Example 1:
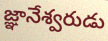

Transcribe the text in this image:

జ్ఞానేశ్వరుడు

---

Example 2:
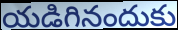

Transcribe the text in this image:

యడిగినందుకు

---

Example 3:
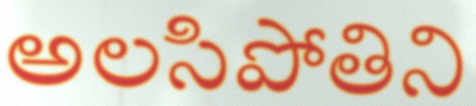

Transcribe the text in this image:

అలసిపోతిని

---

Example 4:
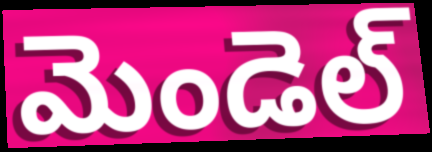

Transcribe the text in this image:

మెండెల్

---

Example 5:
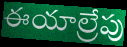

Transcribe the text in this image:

ఈయాల్రేపు